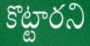
కొట్టారని